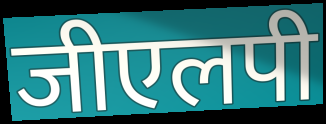
जीएलपी